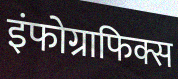
इंफोग्राफिक्स